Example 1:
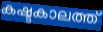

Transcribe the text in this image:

കഷ്ടകാലത്ത്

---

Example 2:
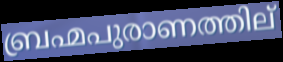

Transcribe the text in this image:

ബ്രഹ്മപുരാണത്തില്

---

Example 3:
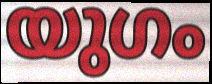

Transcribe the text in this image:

യുഗം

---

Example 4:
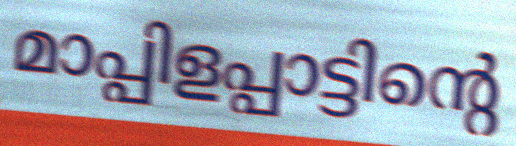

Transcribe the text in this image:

മാപ്പിളപ്പാട്ടിന്റെ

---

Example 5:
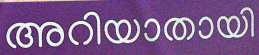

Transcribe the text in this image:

അറിയാതായി